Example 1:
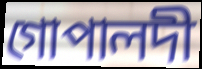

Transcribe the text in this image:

গোপালদী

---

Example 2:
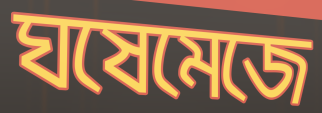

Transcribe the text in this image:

ঘষেমেজে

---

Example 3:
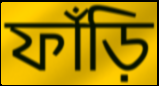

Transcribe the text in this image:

ফাঁড়ি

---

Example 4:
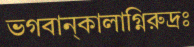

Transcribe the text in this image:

ভগবান্কালাগ্নিরুদ্রঃ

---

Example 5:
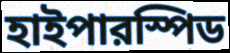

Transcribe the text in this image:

হাইপারস্পিড